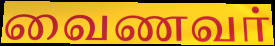
வைணவர்